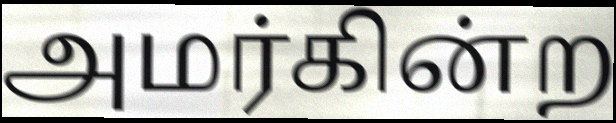
அமர்கின்ற